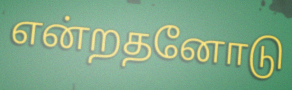
என்றதனோடு